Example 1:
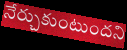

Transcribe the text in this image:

నేర్చుకుంటుందని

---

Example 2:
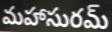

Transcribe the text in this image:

మహాసురమ్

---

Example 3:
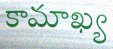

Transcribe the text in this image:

కామాఖ్య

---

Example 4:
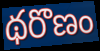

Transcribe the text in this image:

థరొణం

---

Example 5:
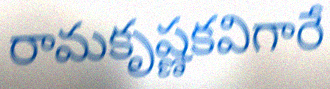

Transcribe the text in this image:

రామకృష్ణకవిగారే